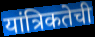
यांत्रिकतेची